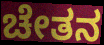
ಚೇತನ